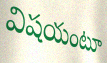
విషయంటూ